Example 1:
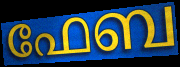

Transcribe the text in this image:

ഫേബ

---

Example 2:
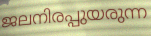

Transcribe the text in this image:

ജലനിരപ്പുയരുന്ന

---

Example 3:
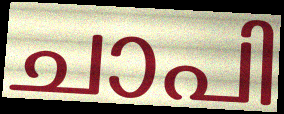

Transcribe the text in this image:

ചാപി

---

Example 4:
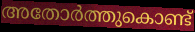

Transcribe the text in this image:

അതോർത്തുകൊണ്ട്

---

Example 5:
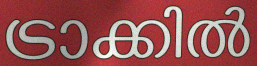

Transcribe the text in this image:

ട്രാക്കിൽ